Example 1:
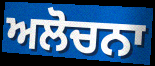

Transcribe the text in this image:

ਅਲੋਚਨਾ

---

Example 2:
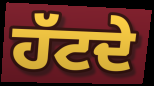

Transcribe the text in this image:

ਹੱਟਦੇ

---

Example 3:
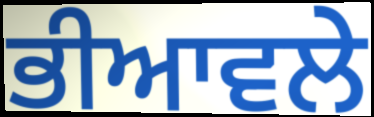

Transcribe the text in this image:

ਭੀਆਵਲੇ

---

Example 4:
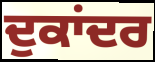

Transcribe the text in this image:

ਦੁਕਾਂਦਰ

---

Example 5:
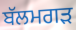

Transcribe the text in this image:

ਬੱਲਮਗੜ